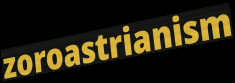
zoroastrianism